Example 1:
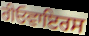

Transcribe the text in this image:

ਰੀਓਵਾਇਰਸ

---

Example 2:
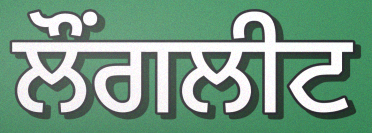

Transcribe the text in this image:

ਲੌਂਗਲੀਟ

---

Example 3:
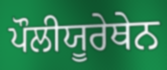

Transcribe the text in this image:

ਪੌਲੀਯੂਰੇਥੇਨ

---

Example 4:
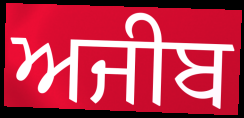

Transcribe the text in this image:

ਅਜੀਬ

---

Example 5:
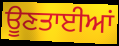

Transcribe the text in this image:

ਊਣਤਾਈਆਂ